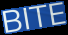
BITE